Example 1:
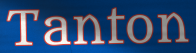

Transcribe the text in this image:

Tanton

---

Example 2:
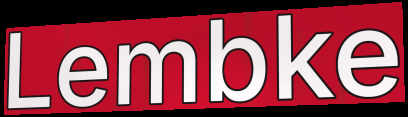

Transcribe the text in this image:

Lembke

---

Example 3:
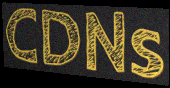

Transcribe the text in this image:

CDNs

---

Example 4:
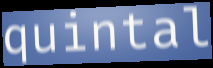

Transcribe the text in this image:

quintal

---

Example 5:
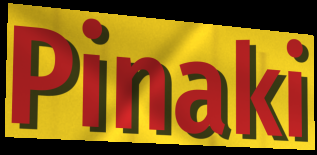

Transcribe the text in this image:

Pinaki